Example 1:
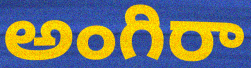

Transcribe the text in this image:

అంగిరా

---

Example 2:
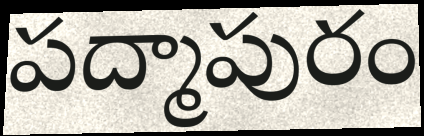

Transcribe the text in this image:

పద్మాపురం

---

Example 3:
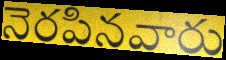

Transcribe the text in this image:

నెరపినవారు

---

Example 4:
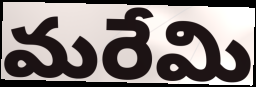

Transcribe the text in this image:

మరేమి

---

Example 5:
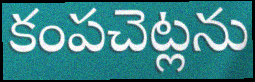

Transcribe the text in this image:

కంపచెట్లను